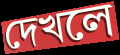
দেখলে